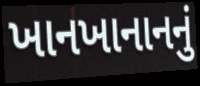
ખાનખાનાનનું